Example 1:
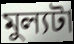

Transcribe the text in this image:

মুল্যটা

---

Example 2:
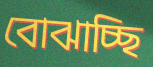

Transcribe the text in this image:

বোঝাচ্ছি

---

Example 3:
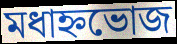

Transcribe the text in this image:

মধাহ্নভোজ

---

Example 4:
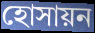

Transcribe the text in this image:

হোসায়ন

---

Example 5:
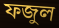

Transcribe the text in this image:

ফজুল